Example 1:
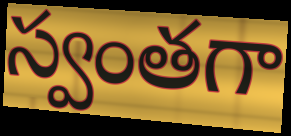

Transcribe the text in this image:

స్వంతగా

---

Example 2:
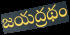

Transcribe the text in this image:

జయద్రథం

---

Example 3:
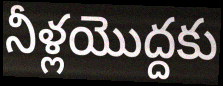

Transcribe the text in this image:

నీళ్లయొద్దకు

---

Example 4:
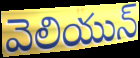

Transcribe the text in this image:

వెలియున్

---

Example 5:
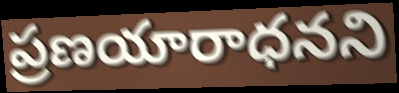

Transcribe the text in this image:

ప్రణయారాధనని